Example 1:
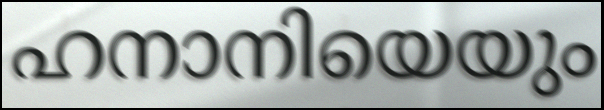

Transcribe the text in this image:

ഹനാനിയെയും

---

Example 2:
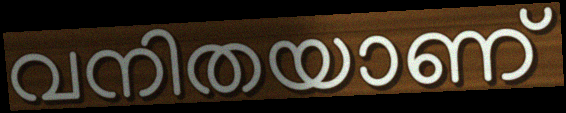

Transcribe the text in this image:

വനിതയാണ്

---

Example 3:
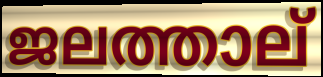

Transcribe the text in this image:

ജലത്താല്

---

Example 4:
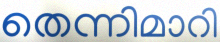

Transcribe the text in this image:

തെന്നിമാറി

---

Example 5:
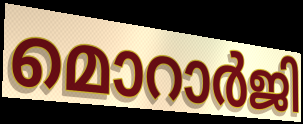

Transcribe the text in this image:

മൊറാർജി